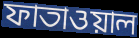
ফাতাওয়াল